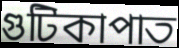
গুটিকাপাত